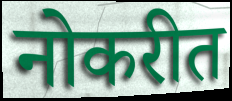
नोकरीत